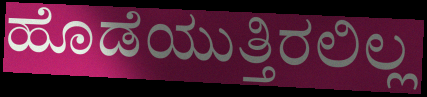
ಹೊಡೆಯುತ್ತಿರಲಿಲ್ಲ